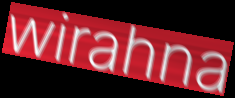
wirahna